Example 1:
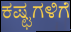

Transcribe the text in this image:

ಕಷ್ಟಗಳಿಗೆ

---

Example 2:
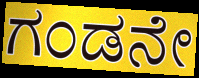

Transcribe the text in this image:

ಗಂಡನೇ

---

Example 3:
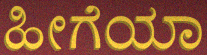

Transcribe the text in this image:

ಹೀಗೆಯಾ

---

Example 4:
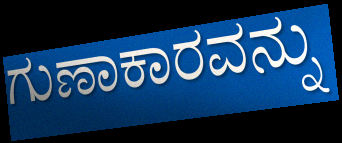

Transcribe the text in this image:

ಗುಣಾಕಾರವನ್ನು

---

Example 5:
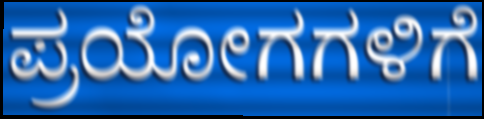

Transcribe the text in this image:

ಪ್ರಯೋಗಗಳಿಗೆ